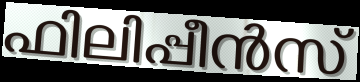
ഫിലിപ്പീൻസ്